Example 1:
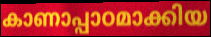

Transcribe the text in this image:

കാണാപ്പാഠമാക്കിയ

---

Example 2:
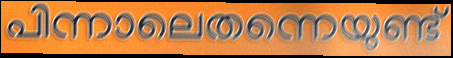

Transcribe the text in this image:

പിന്നാലെതന്നെയുണ്ട്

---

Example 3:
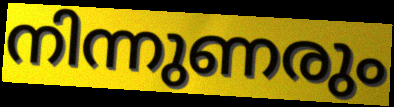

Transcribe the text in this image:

നിന്നുണരും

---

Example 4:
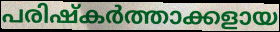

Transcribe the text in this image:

പരിഷ്കർത്താക്കളായ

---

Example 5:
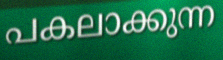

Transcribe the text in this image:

പകലാക്കുന്ന